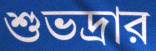
শুভদ্রার